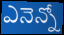
ఎనెన్నో